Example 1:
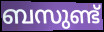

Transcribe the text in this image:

ബസുണ്ട്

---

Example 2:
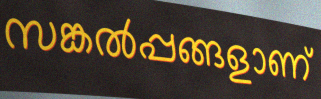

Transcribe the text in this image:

സങ്കൽപ്പങ്ങളാണ്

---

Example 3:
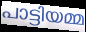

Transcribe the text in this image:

പാട്ടിയമ്മ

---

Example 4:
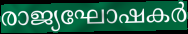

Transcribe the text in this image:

രാജ്യഘോഷകർ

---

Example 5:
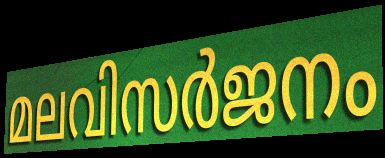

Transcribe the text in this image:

മലവിസർജനം